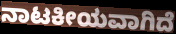
ನಾಟಕೀಯವಾಗಿದೆ